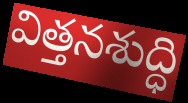
విత్తనశుద్ధి